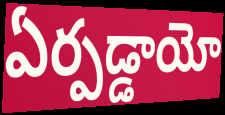
ఏర్పడ్డాయో